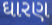
ઘારણ